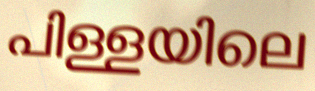
പിള്ളയിലെ